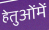
हेतुओंमें